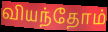
வியந்தோம்